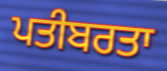
ਪਤੀਬਰਤਾ